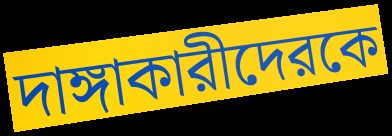
দাঙ্গাকারীদেরকে